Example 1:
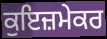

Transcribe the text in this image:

ਕੁਇਜ਼ਮੇਕਰ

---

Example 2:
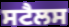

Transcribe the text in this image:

ਸਟੈਲਸ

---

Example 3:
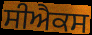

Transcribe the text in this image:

ਸੀਐਕਸ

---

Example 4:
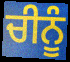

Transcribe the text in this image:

ਚੀਨੂੰ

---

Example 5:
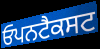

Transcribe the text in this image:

ਓਪਨਟੈਕਸਟ